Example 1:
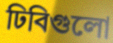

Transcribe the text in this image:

ঢিবিগুলো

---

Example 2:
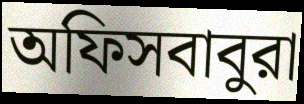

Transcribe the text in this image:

অফিসবাবুরা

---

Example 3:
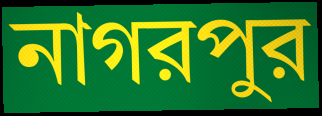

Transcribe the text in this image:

নাগরপুর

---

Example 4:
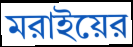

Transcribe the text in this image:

মরাইয়ের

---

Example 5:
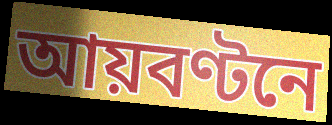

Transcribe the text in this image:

আয়বণ্টনে